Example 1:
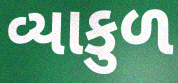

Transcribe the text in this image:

વ્યાકુળ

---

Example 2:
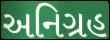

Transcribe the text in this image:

અનિગ્રહ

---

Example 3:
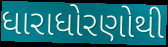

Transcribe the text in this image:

ધારાધોરણોથી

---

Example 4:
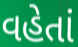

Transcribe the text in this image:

વહેતાં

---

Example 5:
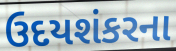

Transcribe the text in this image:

ઉદયશંકરના